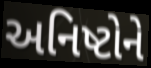
અનિષ્ટોને